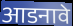
आडनावे